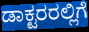
ಡಾಕ್ಟರರಲ್ಲಿಗೆ